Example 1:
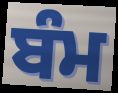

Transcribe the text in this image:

ਬੰਮ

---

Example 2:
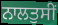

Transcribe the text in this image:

ਨਾਲਤੁਸੀਂ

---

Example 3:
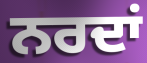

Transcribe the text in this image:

ਨਰਦਾਂ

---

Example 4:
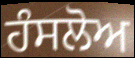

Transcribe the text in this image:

ਹੰਸਲੋਅ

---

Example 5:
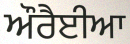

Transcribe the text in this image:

ਔਰੈਈਆ